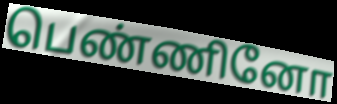
பெண்ணினோ